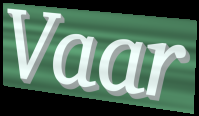
Vaar